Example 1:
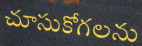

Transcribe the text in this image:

చూసుకోగలను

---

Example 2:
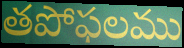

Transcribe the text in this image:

తపోఫలము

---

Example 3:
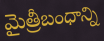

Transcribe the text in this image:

మైత్రీబంధాన్ని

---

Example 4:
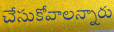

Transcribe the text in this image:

చేసుకోవాలన్నారు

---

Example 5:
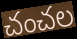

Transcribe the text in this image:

చంచల